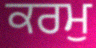
ਕਰਮੁ